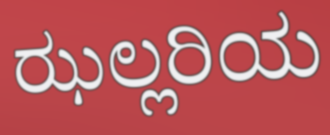
ಝಲ್ಲರಿಯ